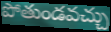
పోతుండవచ్చు